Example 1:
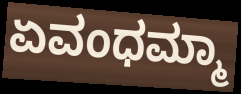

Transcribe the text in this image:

ಏವಂಧಮ್ಮಾ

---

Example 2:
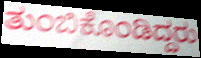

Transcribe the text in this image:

ತುಂಬಿಕೊಂಡಿದ್ದರು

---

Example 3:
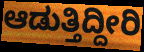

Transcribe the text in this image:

ಆಡುತ್ತಿದ್ದೀರಿ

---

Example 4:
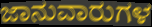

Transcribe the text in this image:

ಜಾನುವಾರುಗಳ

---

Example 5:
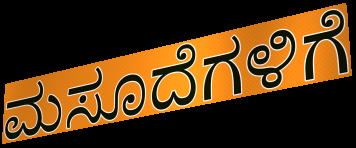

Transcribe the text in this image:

ಮಸೂದೆಗಳಿಗೆ